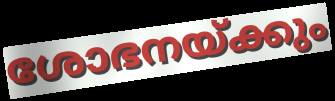
ശോഭനയ്ക്കും